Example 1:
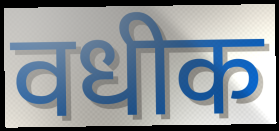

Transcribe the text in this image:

वधीक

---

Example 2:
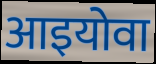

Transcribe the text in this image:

आइयोवा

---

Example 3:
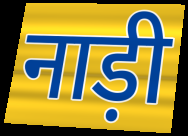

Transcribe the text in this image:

नाड़ी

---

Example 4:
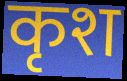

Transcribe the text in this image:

कृश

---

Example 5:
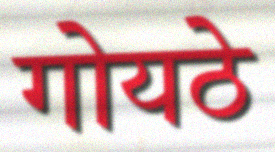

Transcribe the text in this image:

गोयठे